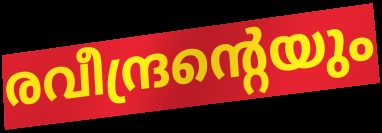
രവീന്ദ്രന്റെയും